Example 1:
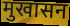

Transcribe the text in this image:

मुखासन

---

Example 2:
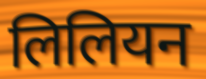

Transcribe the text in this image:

लिलियन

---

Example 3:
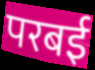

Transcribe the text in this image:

परबई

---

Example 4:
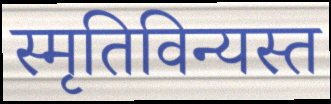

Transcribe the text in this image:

स्मृतिविन्यस्त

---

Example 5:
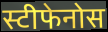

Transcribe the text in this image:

स्टीफेनोस